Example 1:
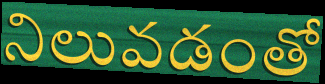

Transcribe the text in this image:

నిలువడంతో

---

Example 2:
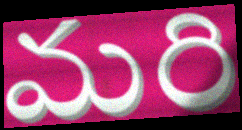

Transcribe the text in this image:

మరి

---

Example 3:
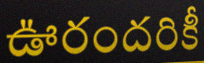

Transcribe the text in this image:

ఊరందరికీ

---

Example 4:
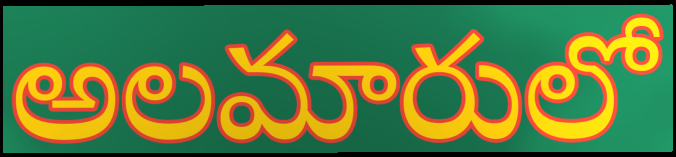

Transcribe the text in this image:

అలమారులో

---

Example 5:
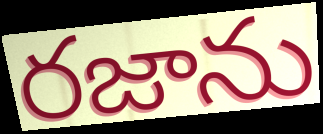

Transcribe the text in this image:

రజాను